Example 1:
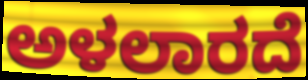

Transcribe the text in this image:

ಅಳಲಾರದೆ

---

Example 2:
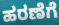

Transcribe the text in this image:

ಹರಣೆಗೆ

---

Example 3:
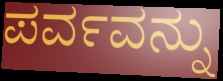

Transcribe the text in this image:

ಪರ್ವವನ್ನು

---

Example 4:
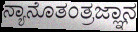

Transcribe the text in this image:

ನ್ಯಾನೊತಂತ್ರಜ್ಞಾನ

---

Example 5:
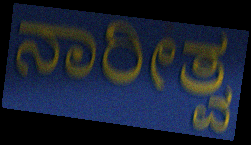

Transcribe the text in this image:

ನಾರೀತ್ವ